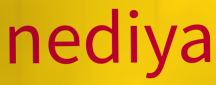
nediya